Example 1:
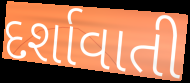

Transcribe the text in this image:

દર્શાવાતી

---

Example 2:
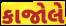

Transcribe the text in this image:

કાજોલે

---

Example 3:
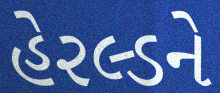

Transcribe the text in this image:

હેરલ્ડને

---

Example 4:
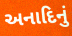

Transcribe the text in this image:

અનાદિનું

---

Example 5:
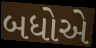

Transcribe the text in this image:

બધોએ